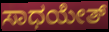
ಸಾಧಯೇತ್